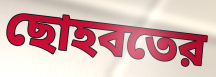
ছোহবতের